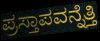
ಪ್ರಸ್ತಾಪವನ್ನೆತ್ತಿ